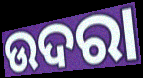
ଉଦରା